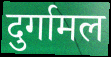
दुर्गामल